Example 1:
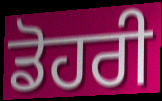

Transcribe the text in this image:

ਡੋਹਰੀ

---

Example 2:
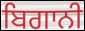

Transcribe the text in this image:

ਬਿਗਾਨੀ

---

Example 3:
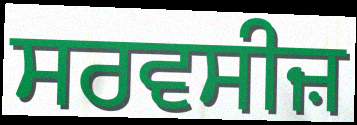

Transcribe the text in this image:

ਸਰਵਸੀਜ਼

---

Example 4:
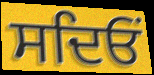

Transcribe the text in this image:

ਸਦਿਓਂ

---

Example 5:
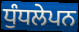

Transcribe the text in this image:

ਧੁੰਧਲੇਪਨ